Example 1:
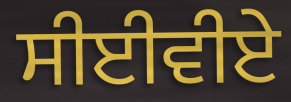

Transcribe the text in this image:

ਸੀਈਵੀਏ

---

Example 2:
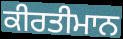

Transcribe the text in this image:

ਕੀਰਤੀਮਾਨ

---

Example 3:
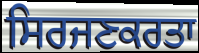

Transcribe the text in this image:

ਸਿਰਜਣਕਰਤਾ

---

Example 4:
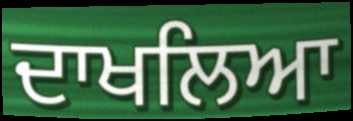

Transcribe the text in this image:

ਦਾਖਲਿਆ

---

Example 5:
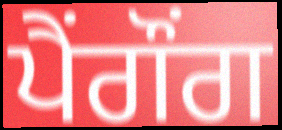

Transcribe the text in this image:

ਪੈਂਗੌਂਗ